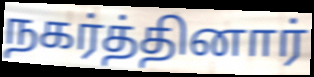
நகர்த்தினார்